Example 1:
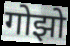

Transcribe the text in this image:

गोझो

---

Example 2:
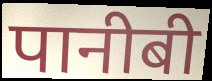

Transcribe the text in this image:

पानीबी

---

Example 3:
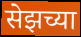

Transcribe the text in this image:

सेझच्या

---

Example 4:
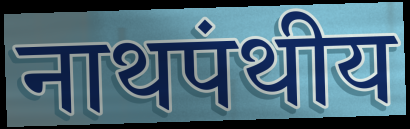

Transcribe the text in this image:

नाथपंथीय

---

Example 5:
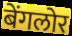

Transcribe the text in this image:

बेंगलोर